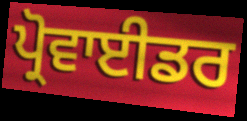
ਪ੍ਰੋਵਾਈਡਰ